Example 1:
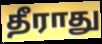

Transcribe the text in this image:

தீராது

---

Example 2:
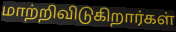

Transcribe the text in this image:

மாற்றிவிடுகிறார்கள்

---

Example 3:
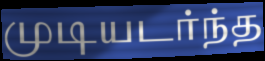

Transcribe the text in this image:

முடியடர்ந்த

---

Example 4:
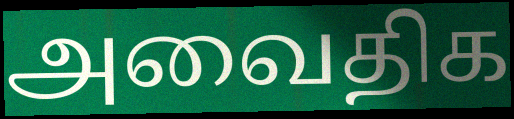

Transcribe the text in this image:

அவைதிக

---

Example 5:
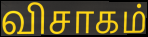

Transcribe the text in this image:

விசாகம்